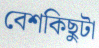
বেশকিছুটা